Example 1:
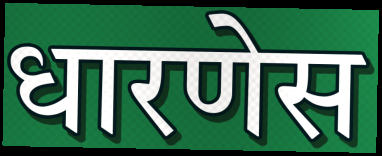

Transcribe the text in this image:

धारणेस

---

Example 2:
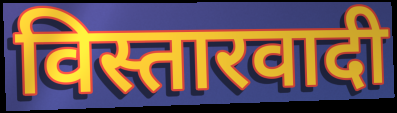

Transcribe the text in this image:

विस्तारवादी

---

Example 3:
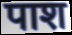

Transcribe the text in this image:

पाश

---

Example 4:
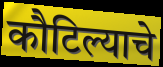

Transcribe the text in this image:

कौटिल्याचे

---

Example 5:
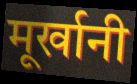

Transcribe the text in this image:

मूर्खानी